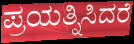
ಪ್ರಯತ್ನಿಸಿದರೆ